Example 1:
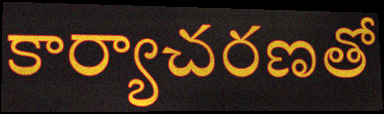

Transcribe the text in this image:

కార్యాచరణతో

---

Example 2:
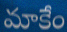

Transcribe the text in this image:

మాకేం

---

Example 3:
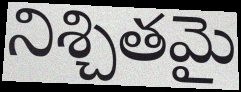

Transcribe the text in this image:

నిశ్చితమై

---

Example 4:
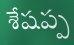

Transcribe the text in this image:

శేషప్ప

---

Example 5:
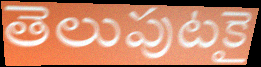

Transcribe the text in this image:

తెలుపుటకై